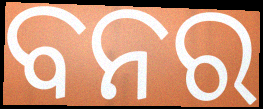
ବନର